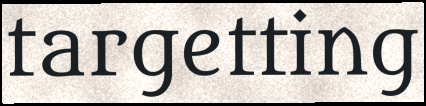
targetting